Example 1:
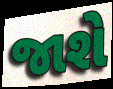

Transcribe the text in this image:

જાશે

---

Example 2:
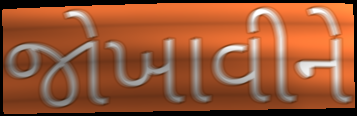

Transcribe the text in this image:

જોખાવીને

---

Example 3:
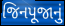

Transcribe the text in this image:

જિનપૂજાનું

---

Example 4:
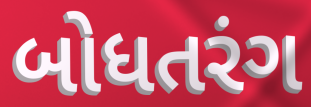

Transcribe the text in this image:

બોધતરંગ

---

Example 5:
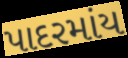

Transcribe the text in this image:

પાદરમાંય